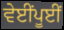
ਵੇਈਂਪੂਈਂ